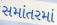
સમાંતરમાં